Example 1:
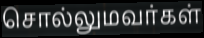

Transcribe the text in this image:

சொல்லுமவர்கள்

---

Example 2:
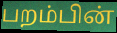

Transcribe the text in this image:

பறம்பின்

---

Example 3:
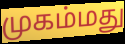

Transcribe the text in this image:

முகம்மது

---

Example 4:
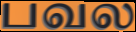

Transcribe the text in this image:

பவல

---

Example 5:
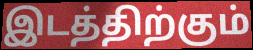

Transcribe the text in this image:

இடத்திற்கும்